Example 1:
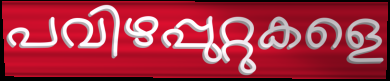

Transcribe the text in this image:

പവിഴപ്പുറ്റുകളെ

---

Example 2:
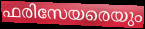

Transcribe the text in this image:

ഫരിസേയരെയും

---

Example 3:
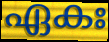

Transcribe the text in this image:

ഏകഃ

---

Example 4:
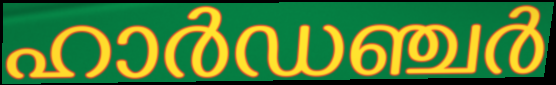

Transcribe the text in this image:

ഹാർഡഞ്ചർ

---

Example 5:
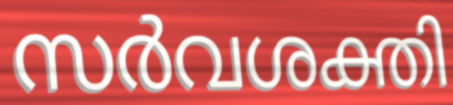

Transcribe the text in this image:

സർവശക്തി